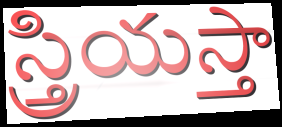
స్త్రియస్తా